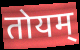
तोयम्